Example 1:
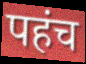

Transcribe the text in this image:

पहंच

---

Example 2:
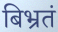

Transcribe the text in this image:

बिभ्रतं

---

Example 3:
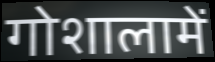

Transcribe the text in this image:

गोशालामें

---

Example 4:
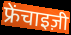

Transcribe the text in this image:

फ्रेंचाइज़ी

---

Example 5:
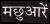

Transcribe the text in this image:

मछुआरें